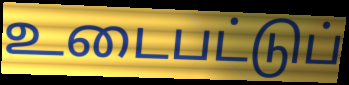
உடைபட்டுப்